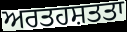
ਅਰਤਹਸ਼ਤਤਾ